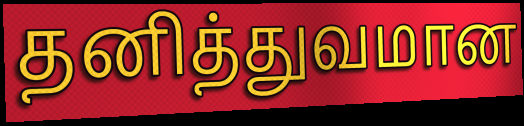
தனித்துவமான